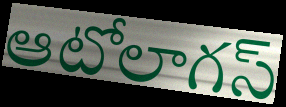
ఆటోలాగస్